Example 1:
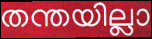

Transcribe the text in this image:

തന്തയില്ലാ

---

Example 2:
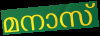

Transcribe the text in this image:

മനാസ്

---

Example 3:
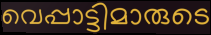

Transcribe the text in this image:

വെപ്പാട്ടിമാരുടെ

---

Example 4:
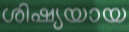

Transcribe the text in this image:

ശിഷ്യയായ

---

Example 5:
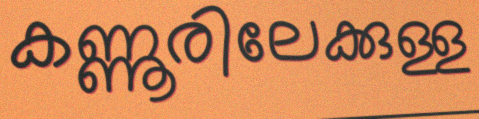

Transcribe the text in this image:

കണ്ണൂരിലേക്കുള്ള